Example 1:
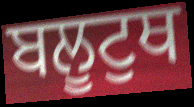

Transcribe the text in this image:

ਬਲੂਟੁਥ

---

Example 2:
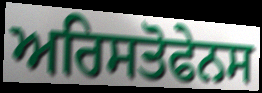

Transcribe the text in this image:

ਅਰਿਸਤੋਫੇਨਸ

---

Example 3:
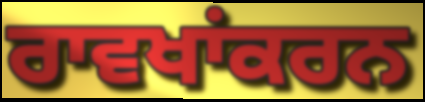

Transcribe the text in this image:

ਰਾਵਖਾਂਕਰਨ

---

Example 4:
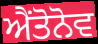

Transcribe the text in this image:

ਐਂਤੋਨੋਵ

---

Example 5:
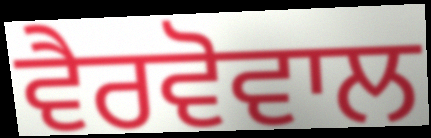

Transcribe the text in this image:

ਵੈਰਵੋਵਾਲ